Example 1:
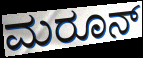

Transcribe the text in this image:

ಮರೂನ್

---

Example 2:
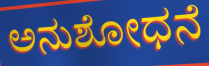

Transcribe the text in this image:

ಅನುಶೋಧನೆ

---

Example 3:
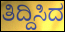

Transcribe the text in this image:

ತಿದ್ದಿಸಿದ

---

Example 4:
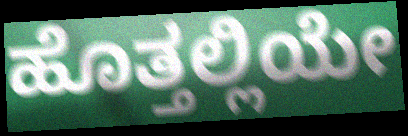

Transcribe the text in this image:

ಹೊತ್ತಲ್ಲಿಯೇ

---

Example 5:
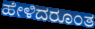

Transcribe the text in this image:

ಹೇಳಿದರೂಂತ